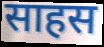
साहस